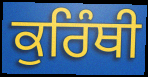
ਕੁਰਿੰਥੀ